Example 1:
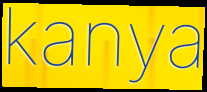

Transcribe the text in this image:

kanya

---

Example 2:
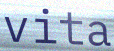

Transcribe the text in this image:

vita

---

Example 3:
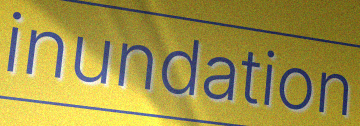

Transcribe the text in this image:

inundation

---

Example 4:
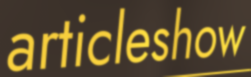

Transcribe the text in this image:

articleshow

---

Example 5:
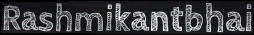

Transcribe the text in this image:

Rashmikantbhai